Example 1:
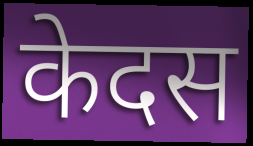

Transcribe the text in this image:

केदस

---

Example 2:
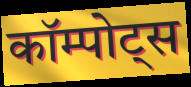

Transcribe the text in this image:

कॉम्पोट्स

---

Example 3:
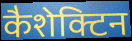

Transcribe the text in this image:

कैशेक्टिन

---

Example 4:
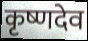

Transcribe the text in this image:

कृष्‍णदेव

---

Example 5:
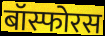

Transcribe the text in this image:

बॉस्फोरस